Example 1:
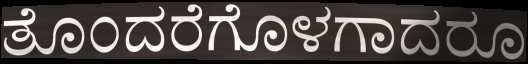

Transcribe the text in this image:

ತೊಂದರೆಗೊಳಗಾದರೂ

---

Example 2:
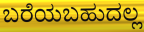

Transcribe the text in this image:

ಬರೆಯಬಹುದಲ್ಲ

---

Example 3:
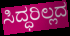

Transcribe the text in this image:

ಸಿದ್ಧರಿಲ್ಲದ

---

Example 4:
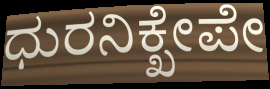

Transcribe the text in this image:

ಧುರನಿಕ್ಖೇಪೇ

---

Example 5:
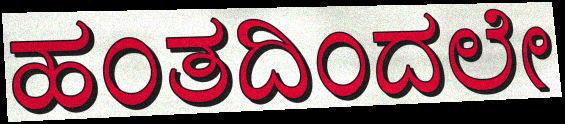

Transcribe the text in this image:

ಹಂತದಿಂದಲೇ